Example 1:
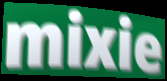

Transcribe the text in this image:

mixie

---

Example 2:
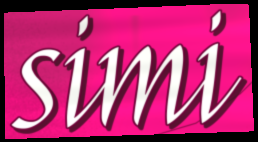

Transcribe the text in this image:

simi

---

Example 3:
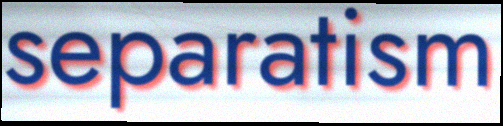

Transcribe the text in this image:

separatism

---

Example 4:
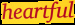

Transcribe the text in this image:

heartful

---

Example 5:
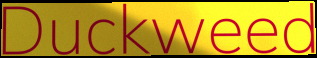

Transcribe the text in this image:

Duckweed